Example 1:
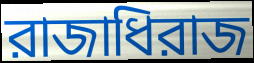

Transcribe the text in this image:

রাজাধিরাজ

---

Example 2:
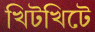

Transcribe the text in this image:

খিটখিটে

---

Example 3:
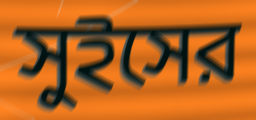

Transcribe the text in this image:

সুইসের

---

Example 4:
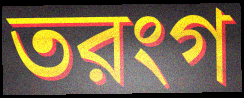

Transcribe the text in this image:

তরংগ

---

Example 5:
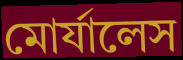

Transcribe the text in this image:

মোর্যালেস